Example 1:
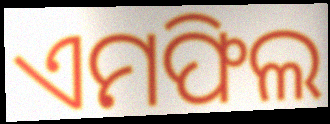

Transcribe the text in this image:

ଏମଫିଲ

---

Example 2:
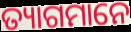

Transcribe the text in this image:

ତ୍ୟାଗମାନେ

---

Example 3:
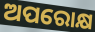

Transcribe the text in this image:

ଅପରୋକ୍ଷ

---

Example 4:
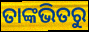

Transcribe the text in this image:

ତାଙ୍କଭିତରୁ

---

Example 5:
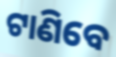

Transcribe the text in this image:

ଟାଣିବେ